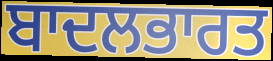
ਬਾਦਲਭਾਰਤ